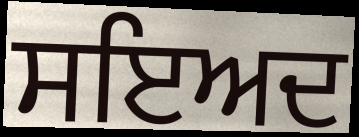
ਸਇਅਦ